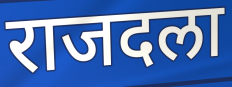
राजदला